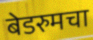
बेडरुमचा